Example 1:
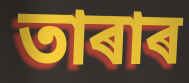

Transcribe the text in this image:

তাৰাৰ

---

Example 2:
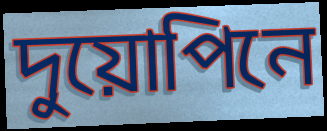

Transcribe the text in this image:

দুয়োপিনে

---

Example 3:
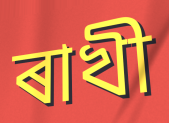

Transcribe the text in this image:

ৰাখী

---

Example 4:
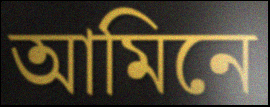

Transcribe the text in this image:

আমিনে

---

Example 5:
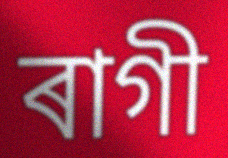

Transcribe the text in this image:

ৰাগী